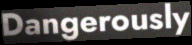
Dangerously